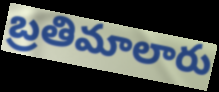
బ్రతిమాలారు